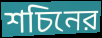
শচিনের